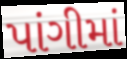
પાંગીમાં